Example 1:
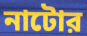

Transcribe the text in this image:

নাটোর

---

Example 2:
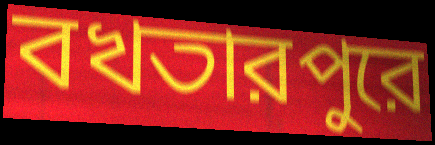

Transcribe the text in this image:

বখতারপুরে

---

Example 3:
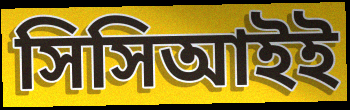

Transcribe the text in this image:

সিসিআইই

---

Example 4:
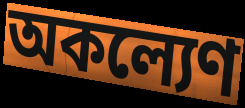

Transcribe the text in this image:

অকল্যেণ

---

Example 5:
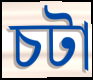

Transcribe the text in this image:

চটা